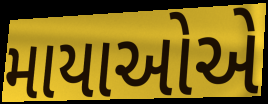
માયાઓએ